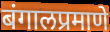
बंगालप्रमाणे